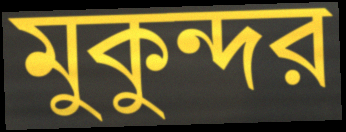
মুকুন্দর